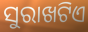
ସୁରାଖଟିଏ